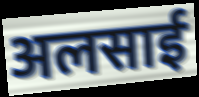
अलसाई